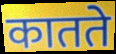
कातते